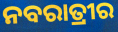
ନବରାତ୍ରୀର